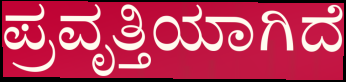
ಪ್ರವೃತ್ತಿಯಾಗಿದೆ